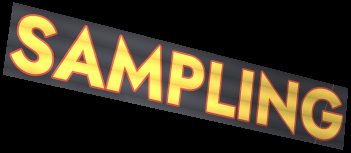
SAMPLING